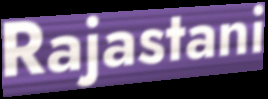
Rajastani